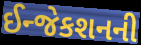
ઈન્જેકશનની